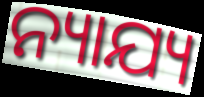
ନ୍ୟାଯ୍ୟ